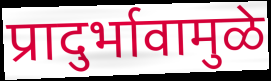
प्रादुर्भावामुळे